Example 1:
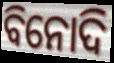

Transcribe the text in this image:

ବିନୋଦି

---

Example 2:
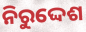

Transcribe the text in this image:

ନିରୁଦ୍ଦେଶ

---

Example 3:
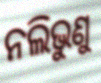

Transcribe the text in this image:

ନଲିଭୁଣୁ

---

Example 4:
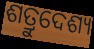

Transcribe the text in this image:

ଶତ୍ରୁଦେଶ୍ୟ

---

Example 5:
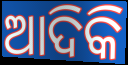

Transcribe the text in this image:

ଆଦିକି